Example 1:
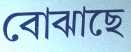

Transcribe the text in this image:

বোঝাছে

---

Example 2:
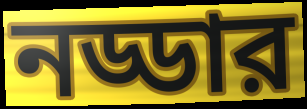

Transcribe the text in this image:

নড্ডার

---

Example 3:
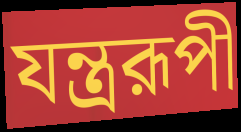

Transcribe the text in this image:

যন্ত্ররূপী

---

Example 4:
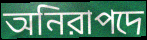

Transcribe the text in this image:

অনিরাপদে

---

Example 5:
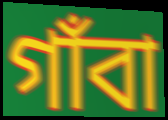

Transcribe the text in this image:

গাঁবা